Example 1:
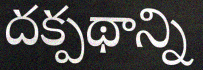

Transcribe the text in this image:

దక్పథాన్ని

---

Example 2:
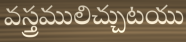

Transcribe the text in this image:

వస్త్రములిచ్చుటయు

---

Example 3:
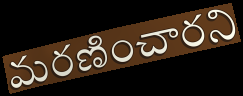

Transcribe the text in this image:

మరణించారని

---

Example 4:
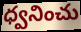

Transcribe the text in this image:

ధ్వనించు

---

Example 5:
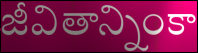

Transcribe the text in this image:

జీవితాన్నింకా